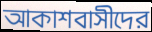
আকাশবাসীদের